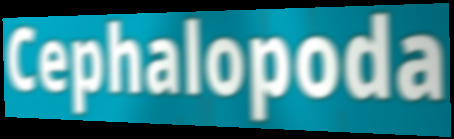
Cephalopoda